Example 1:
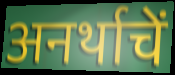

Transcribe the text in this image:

अनर्थाचें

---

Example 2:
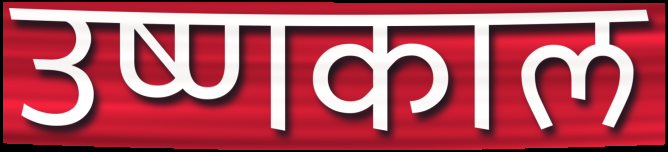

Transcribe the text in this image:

उष्णकाल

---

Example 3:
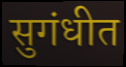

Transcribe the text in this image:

सुगंधीत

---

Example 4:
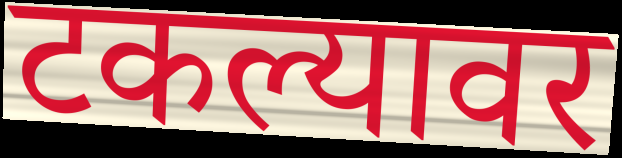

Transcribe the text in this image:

टकल्यावर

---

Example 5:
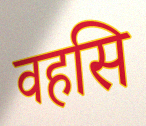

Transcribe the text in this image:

वहसि